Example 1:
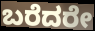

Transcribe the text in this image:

ಬರೆದರೇ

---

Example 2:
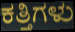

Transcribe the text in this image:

ಕತ್ತಿಗಳು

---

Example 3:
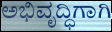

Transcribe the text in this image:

ಅಭಿವೃದ್ಧಿಗಾಗಿ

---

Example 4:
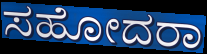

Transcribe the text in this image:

ಸಹೋದರಾ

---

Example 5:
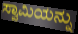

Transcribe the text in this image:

ಸ್ವಾಮಿಯನ್ನು